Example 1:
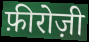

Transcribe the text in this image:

फ़ीरोज़ी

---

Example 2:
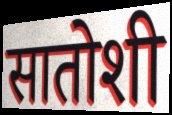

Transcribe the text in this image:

सातोशी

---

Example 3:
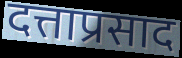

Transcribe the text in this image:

दत्ताप्रसाद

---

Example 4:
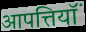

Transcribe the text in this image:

आपत्तियॉं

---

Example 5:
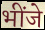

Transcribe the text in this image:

भींजे